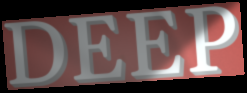
DEEP